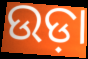
ଉଡ଼ା